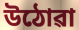
উঠোৱা